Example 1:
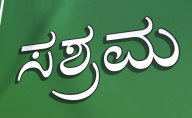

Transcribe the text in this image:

ಸಶ್ರಮ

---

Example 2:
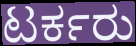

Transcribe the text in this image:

ಟರ್ಕರು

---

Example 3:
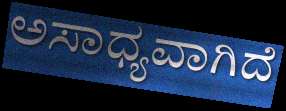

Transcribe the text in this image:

ಅಸಾಧ್ಯವಾಗಿದೆ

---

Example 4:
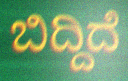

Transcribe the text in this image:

ಬಿದ್ದಿದೆ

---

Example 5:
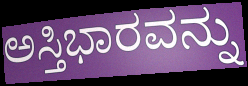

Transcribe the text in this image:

ಅಸ್ತಿಭಾರವನ್ನು